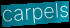
carpels